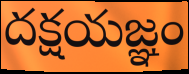
దక్షయజ్ఞం